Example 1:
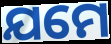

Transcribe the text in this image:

ଯମେ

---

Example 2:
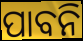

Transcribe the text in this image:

ପାବନି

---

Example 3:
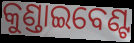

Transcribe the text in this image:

କୁଣ୍ଡାଇବେଣ୍ଟ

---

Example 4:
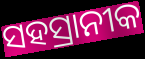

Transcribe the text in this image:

ସହସ୍ରାନୀକ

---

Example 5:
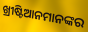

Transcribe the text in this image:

ଖ୍ରୀଷ୍ଟିଆନମାନଙ୍କର